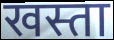
खस्ता